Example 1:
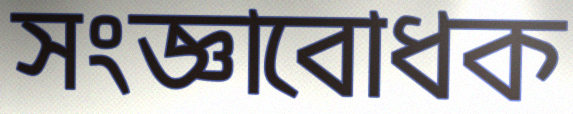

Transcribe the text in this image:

সংজ্ঞাবোধক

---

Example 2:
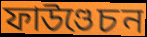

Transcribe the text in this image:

ফাউণ্ডেচন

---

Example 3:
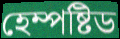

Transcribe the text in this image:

হেম্পষ্টিড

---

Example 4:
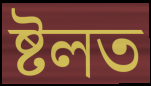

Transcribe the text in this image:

ষ্টলত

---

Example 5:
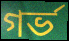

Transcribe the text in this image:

গৰ্ভ